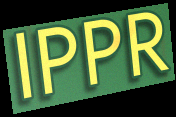
IPPR